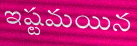
ఇష్టమయిన